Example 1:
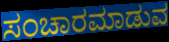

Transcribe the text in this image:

ಸಂಚಾರಮಾಡುವ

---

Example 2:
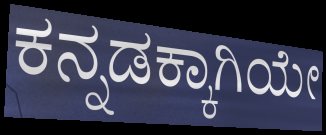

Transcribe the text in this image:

ಕನ್ನಡಕ್ಕಾಗಿಯೇ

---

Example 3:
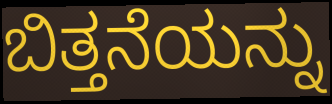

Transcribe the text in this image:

ಬಿತ್ತನೆಯನ್ನು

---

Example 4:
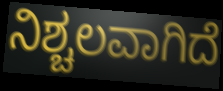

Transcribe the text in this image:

ನಿಶ್ಚಲವಾಗಿದೆ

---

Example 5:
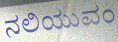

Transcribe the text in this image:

ನಲಿಯುವಂ